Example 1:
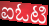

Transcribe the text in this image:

ಐಓಟಿ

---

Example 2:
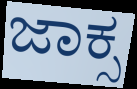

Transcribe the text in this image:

ಜಾಕ್ಸ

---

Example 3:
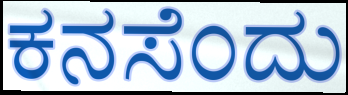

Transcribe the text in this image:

ಕನಸೆಂದು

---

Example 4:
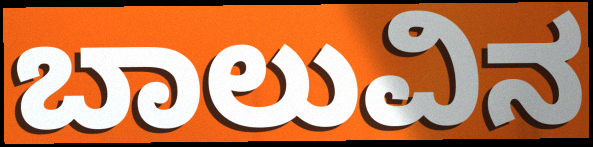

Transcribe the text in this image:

ಬಾಲುವಿನ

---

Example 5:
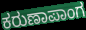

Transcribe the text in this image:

ಕರುಣಾಪಾಂಗ